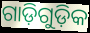
ଗାଡ଼ିଗୁଡ଼ିକ